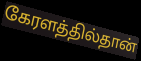
கேரளத்தில்தான்